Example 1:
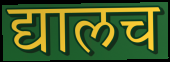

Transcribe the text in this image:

द्यालच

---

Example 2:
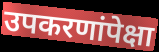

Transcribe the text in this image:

उपकरणांपेक्षा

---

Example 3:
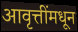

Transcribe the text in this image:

आवृत्तींमधून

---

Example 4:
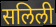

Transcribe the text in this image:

सलिली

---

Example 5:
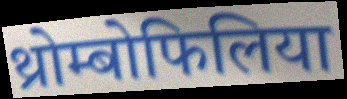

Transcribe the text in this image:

थ्रोम्बोफिलिया